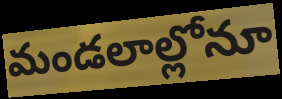
మండలాల్లోనూ